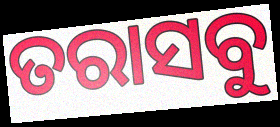
ତରାସବୁ